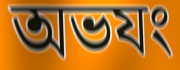
অভযং